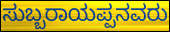
ಸುಬ್ಬರಾಯಪ್ಪನವರು